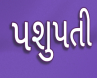
પશુપતી